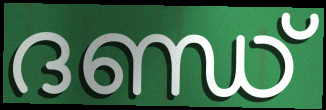
ദണ്ഡ്